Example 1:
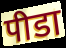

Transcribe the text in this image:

पीडा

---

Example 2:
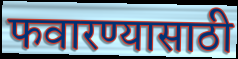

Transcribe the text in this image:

फवारण्यासाठी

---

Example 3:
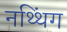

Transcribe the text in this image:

नथ्थिंग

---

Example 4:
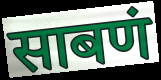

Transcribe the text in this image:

साबणं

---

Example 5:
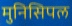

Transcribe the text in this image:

मुनिसिपल